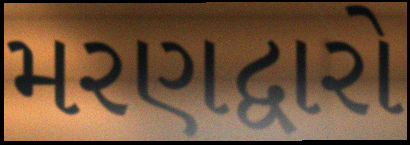
મરણદ્વારો